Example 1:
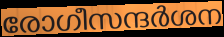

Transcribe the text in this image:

രോഗീസന്ദർശന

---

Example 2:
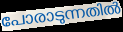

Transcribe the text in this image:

പോരാടുന്നതിൽ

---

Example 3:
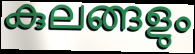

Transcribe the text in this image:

കുലങ്ങളും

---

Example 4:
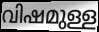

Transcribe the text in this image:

വിഷമുള്ള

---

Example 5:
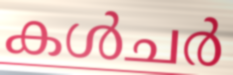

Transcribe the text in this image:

കൾചർ